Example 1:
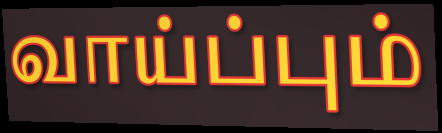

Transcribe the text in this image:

வாய்ப்பும்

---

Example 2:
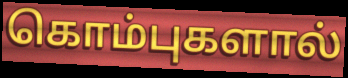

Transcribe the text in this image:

கொம்புகளால்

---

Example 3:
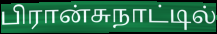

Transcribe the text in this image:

பிரான்சுநாட்டில்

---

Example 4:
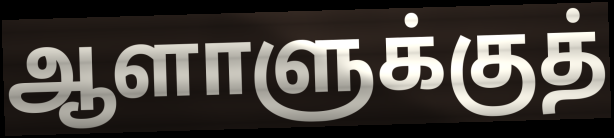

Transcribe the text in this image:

ஆளாளுக்குத்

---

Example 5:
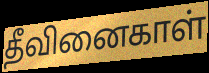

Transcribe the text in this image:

தீவினைகாள்